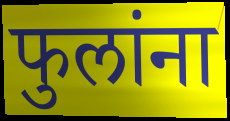
फुलांना